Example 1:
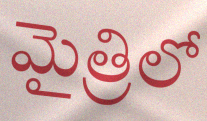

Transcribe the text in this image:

మైత్రిలో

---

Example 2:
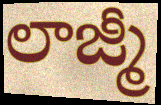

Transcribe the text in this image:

లాజ్మీ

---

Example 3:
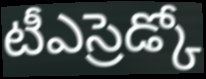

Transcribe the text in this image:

టీఎస్రెడ్కో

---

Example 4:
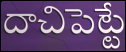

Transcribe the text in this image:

దాచిపెట్టే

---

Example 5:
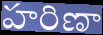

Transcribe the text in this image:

హరిణా